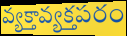
వ్యక్తావ్యక్తపరం